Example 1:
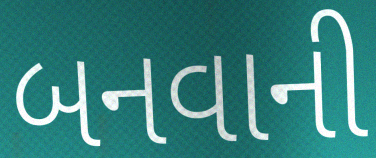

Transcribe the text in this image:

બનવાની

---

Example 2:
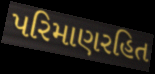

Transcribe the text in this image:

પરિમાણરહિત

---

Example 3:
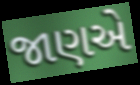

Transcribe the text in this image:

જાણએ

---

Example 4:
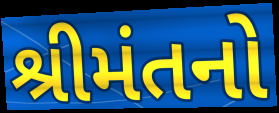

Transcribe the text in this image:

શ્રીમંતનો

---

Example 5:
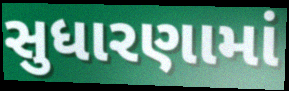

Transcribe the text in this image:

સુધારણામાં